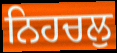
ਨਿਹਚਲੁ